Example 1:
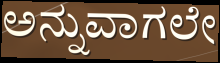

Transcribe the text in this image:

ಅನ್ನುವಾಗಲೇ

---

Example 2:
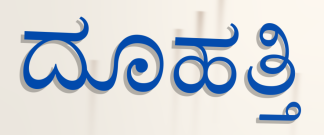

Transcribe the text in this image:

ದೂಹತ್ತಿ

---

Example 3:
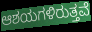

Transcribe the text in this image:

ಆಶಯಗಳಿರುತ್ತವೆ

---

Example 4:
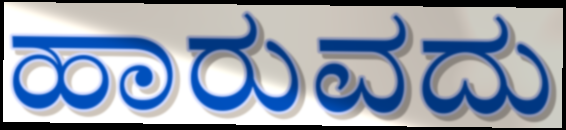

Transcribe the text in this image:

ಹಾರುವದು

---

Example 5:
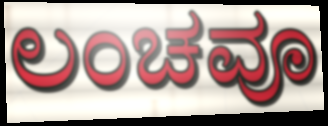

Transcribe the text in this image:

ಲಂಚವೂ